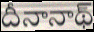
దీనానాథ్